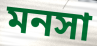
মনসা